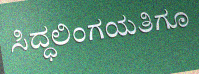
ಸಿದ್ಧಲಿಂಗಯತಿಗೂ